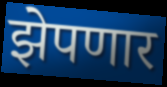
झेपणार